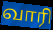
வாரி